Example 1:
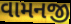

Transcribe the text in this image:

વામનજી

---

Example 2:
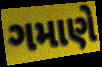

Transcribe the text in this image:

ગમાણે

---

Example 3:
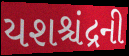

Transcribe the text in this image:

યશશ્ચંદ્રની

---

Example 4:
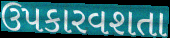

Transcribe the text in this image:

ઉપકારવશતા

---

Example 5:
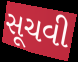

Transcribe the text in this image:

સૂચવી